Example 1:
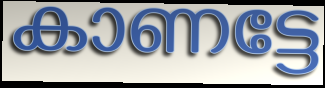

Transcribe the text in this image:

കാണട്ടേ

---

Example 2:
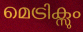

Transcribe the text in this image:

മെട്രിക്സും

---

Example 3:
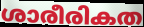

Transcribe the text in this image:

ശാരീരികത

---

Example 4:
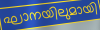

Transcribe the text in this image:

ഘാനയിലുമായി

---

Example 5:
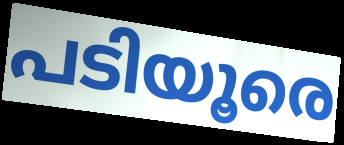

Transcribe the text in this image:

പടിയൂരെ